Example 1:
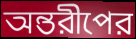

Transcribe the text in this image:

অন্তরীপের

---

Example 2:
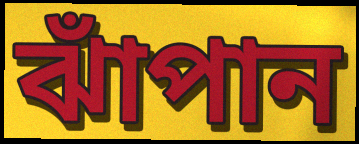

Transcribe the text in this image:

ঝাঁপান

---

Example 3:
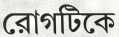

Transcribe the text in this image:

রোগটিকে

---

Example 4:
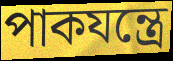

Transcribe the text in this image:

পাকযন্ত্রে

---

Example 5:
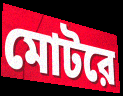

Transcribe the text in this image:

মোটরে